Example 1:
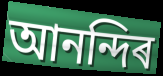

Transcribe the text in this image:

আনন্দিৰ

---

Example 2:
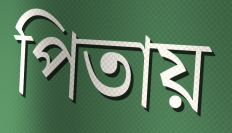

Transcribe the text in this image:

পিতায়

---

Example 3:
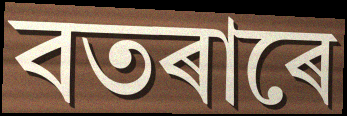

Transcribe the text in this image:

বতৰাৰে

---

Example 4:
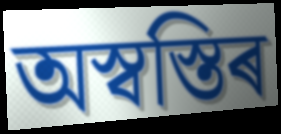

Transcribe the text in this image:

অস্বস্তিৰ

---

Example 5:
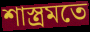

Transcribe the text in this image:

শাস্ত্ৰমতে